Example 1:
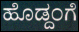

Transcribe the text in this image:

ಹೊಡ್ದಂಗೆ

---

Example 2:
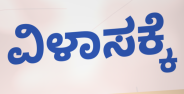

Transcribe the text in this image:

ವಿಳಾಸಕ್ಕೆ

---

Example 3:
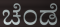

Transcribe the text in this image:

ಚೆಂಡೆ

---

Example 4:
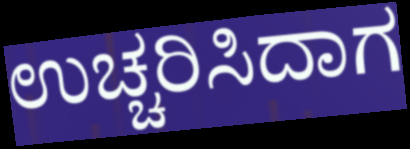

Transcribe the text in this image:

ಉಚ್ಚರಿಸಿದಾಗ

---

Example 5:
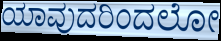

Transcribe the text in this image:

ಯಾವುದರಿಂದಲೋ